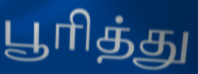
பூரித்து